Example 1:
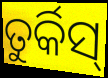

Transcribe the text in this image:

ତୁର୍କିସ୍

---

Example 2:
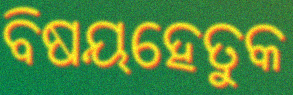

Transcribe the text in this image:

ବିଷୟହେତୁକ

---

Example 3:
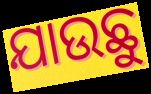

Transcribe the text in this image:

ଯାଉଛୁ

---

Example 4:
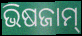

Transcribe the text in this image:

ଭିଷଜାମ୍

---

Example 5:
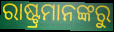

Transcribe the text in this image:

ରାଷ୍ଟ୍ରମାନଙ୍କରୁ